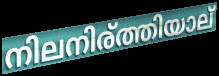
നിലനിര്ത്തിയാല്